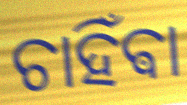
ଚାହିଁଵା